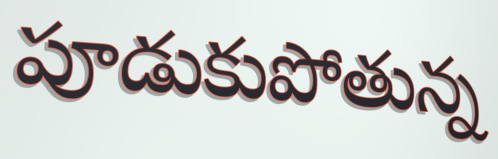
పూడుకుపోతున్న